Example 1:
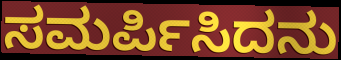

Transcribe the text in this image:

ಸಮರ್ಪಿಸಿದನು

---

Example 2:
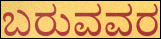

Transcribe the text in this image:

ಬರುವವರ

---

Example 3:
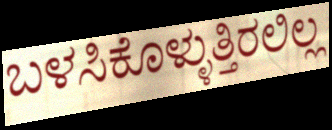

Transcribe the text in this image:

ಬಳಸಿಕೊಳ್ಳುತ್ತಿರಲಿಲ್ಲ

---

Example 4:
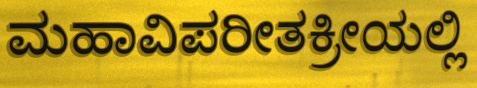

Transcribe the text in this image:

ಮಹಾವಿಪರೀತಕ್ರೀಯಲ್ಲಿ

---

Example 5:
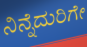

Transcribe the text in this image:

ನಿನ್ನೆದುರಿಗೇ